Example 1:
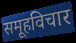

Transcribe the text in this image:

समूहविचार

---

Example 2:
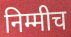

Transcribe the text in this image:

निम्मीच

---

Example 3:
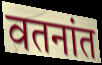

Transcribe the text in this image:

वतनांत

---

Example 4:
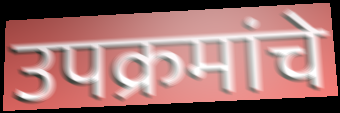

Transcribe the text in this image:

उपक्रमांचे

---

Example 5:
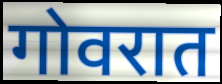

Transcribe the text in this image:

गोवरात